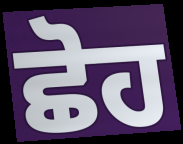
ਛੋਹ